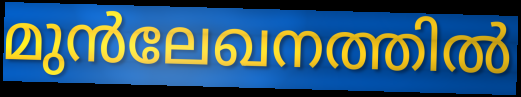
മുൻലേഖനത്തിൽ